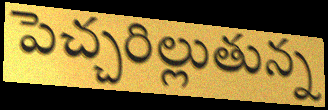
పెచ్చరిల్లుతున్న